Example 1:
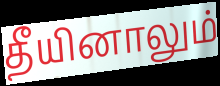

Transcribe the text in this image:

தீயினாலும்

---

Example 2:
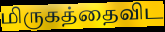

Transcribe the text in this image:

மிருகத்தைவிட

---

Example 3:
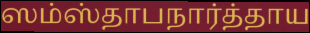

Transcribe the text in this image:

ஸம்ஸ்தாபநார்த்தாய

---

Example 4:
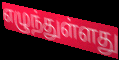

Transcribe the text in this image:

எழுந்துள்ளது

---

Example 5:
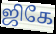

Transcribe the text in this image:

ஜிகே